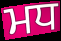
ਮਧ